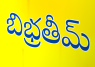
బిభ్రతీమ్